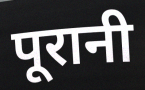
पूरानी